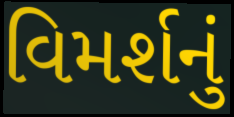
વિમર્શનું